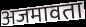
अजमावता